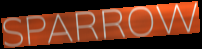
SPARROW